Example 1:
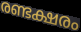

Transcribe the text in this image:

രണ്ടക്ഷരം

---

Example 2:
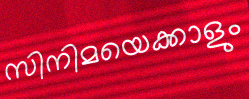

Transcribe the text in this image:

സിനിമയെക്കാളും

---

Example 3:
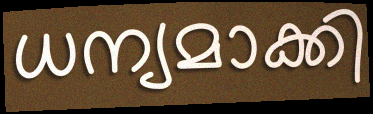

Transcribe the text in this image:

ധന്യമാക്കി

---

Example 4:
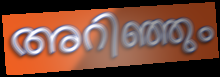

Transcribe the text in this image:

അറിഞ്ഞും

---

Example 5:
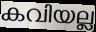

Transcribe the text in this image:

കവിയല്ല